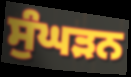
ਸੁੰਘੜਨ